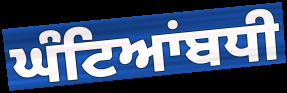
ਘੰਟਿਆਂਬਧੀ